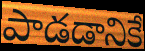
పాడడానికే